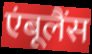
एंबूलैंस